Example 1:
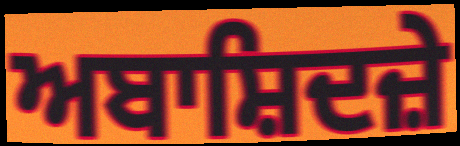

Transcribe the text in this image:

ਅਬਾਸ਼ਿਦਜ਼ੇ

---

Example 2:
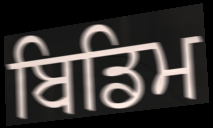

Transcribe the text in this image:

ਬਿਡਿਮ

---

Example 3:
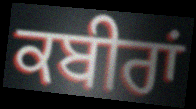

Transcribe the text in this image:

ਕਬੀਰਾਂ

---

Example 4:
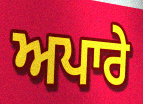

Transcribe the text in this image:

ਅਪਾਰੇ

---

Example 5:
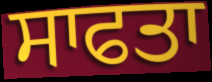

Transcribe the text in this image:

ਸਾਫਤਾ